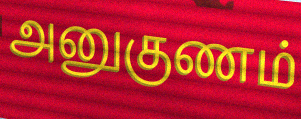
அனுகுணம்